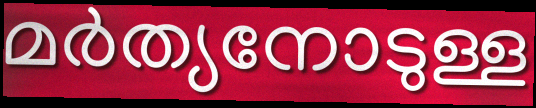
മർത്യനോടുള്ള